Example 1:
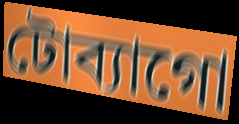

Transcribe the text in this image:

টোব্যাগো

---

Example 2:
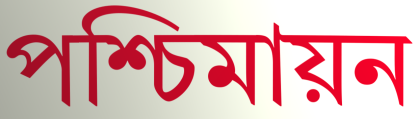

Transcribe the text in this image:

পশ্চিমায়ন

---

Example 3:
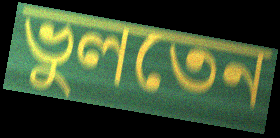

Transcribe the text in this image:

ভুলতেন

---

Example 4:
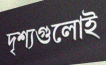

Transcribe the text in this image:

দৃশ্যগুলোই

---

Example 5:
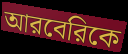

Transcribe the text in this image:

আরবেরিকে